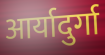
आर्यादुर्गा